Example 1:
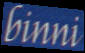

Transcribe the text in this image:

binni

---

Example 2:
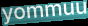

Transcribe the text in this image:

yommuu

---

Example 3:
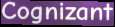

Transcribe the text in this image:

Cognizant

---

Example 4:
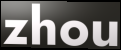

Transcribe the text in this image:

zhou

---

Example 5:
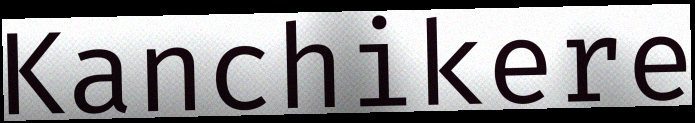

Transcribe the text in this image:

Kanchikere